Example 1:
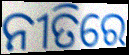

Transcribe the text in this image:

ନୀତିରେ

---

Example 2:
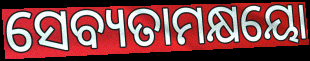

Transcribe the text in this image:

ସେବ୍ୟତାମକ୍ଷୟୋ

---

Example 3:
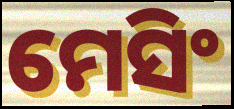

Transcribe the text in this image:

ମେସିଂ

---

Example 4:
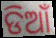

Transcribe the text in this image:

ଡିଆଁ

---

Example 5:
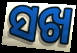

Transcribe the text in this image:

ସଖ